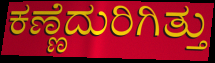
ಕಣ್ಣೆದುರಿಗಿತ್ತು